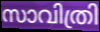
സാവിത്രി